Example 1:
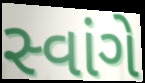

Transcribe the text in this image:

સ્વાંગે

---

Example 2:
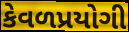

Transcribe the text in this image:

કેવળપ્રયોગી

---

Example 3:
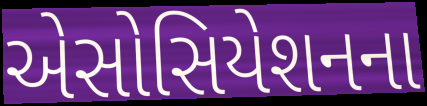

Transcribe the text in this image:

એસોસિયેશનના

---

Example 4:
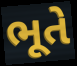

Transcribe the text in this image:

ભૂતે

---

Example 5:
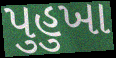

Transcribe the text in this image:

પુહુખા